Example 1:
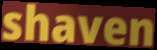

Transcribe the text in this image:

shaven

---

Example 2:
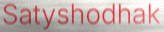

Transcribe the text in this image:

Satyshodhak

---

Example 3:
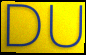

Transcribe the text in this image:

DU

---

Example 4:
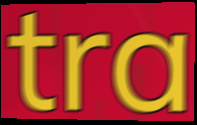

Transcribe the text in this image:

tra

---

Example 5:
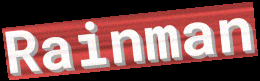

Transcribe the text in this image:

Rainman